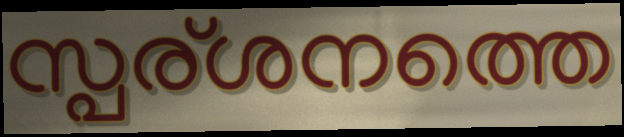
സ്പര്ശനത്തെ